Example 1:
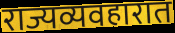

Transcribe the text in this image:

राज्यव्यवहारात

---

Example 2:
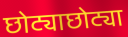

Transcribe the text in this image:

छोट्याछोट्या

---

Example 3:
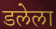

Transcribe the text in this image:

डलेला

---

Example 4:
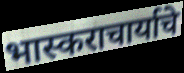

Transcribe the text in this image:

भास्कराचार्याचे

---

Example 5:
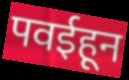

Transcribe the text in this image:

पवईहून